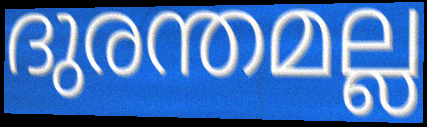
ദുരന്തമല്ല